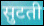
सुटती